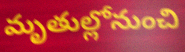
మృతుల్లోనుంచి